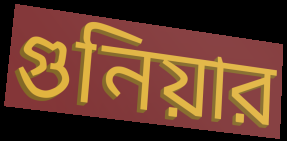
গুনিয়ার